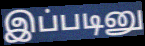
இப்படினு